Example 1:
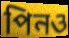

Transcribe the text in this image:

পিনও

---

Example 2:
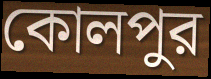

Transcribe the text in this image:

কোলপুর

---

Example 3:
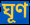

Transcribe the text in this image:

ঘূণ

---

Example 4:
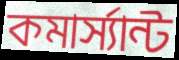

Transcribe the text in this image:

কমার্স্যান্ট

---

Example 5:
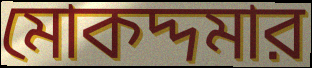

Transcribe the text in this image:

মোকদ্দমার